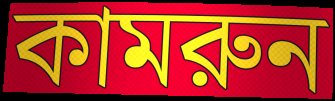
কামরুন